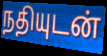
நதியுடன்